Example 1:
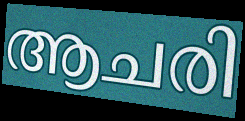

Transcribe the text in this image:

ആചരി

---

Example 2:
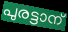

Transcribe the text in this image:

പുരട്ടാന്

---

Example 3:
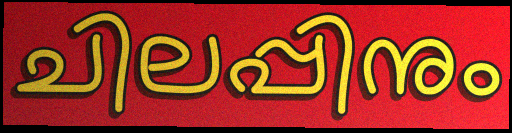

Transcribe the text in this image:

ചിലപ്പിനും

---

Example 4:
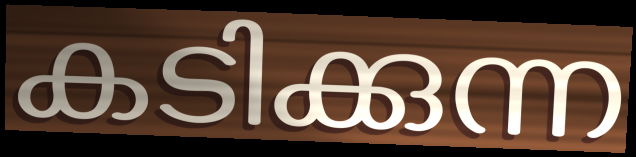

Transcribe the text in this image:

കടിക്കുന്ന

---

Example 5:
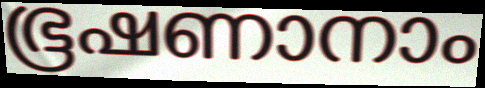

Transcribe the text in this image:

ഭൂഷണാനാം